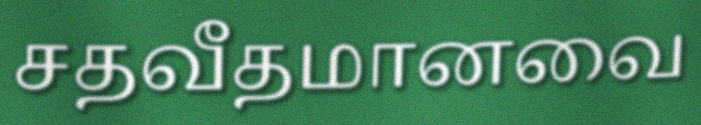
சதவீதமானவை